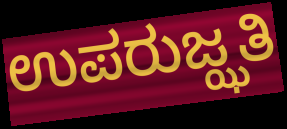
ಉಪರುಜ್ಝತಿ